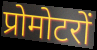
प्रोमोटरों